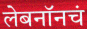
लेबनॉनचं